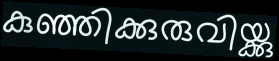
കുഞ്ഞിക്കുരുവിയ്ക്കു